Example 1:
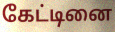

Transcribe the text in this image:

கேட்டினை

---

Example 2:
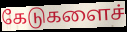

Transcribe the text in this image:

கேடுகளைச்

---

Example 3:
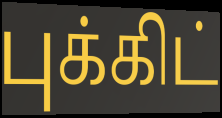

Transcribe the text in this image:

புக்கிட்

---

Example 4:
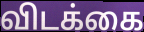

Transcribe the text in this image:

விடக்கை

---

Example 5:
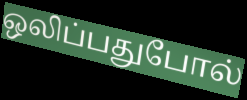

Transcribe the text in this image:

ஒலிப்பதுபோல்